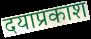
दयाप्रकाश